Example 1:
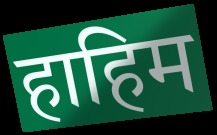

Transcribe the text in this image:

हाहिम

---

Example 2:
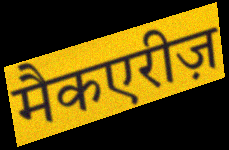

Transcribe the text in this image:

मैकएरीज़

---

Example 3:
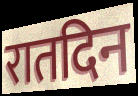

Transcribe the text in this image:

रातदिन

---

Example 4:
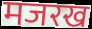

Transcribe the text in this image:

मजरख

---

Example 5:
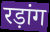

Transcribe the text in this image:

रड़ांग